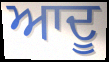
ਆਦੂ